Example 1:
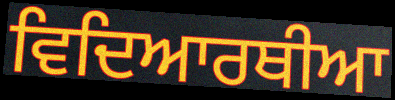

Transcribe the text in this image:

ਵਿਦਿਆਰਥੀਆ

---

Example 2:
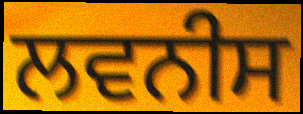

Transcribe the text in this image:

ਲਵਨੀਸ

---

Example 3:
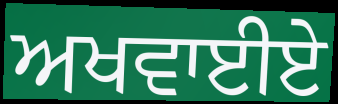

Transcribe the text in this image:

ਅਖਵਾਈਏ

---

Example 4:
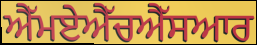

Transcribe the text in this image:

ਐੱਮਏਐੱਚਐੱਸਆਰ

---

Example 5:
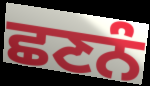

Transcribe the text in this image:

ਛਣਨੰ